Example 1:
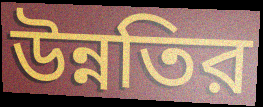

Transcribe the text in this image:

উন্নতির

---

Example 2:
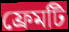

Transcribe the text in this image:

ফ্রেমটি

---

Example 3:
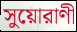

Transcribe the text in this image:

সুয়োরাণী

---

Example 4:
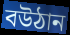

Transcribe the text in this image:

বউঠান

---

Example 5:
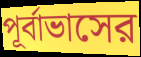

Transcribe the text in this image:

পূর্বাভাসের